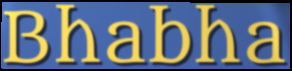
Bhabha